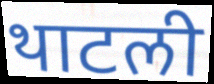
थाटली